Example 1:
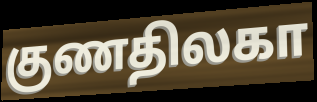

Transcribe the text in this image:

குணதிலகா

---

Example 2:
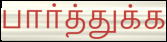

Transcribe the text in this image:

பார்த்துக்க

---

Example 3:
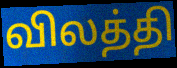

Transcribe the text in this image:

விலத்தி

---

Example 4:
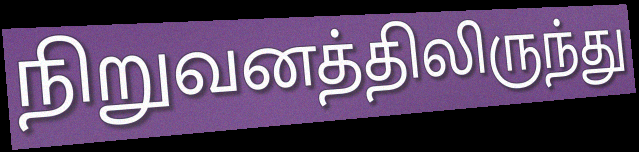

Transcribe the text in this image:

நிறுவனத்திலிருந்து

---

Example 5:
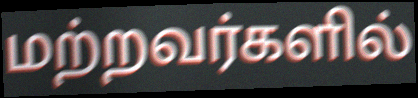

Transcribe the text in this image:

மற்றவர்களில்